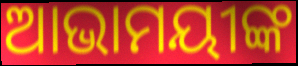
ଆଭାମୟୀଙ୍କ